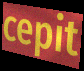
cepit